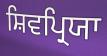
ਸ਼ਿਵਪ੍ਰਿਯਾ